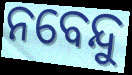
ନବେନ୍ଦୁ